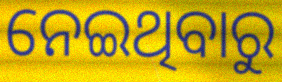
ନେଇଥିବାରୁ